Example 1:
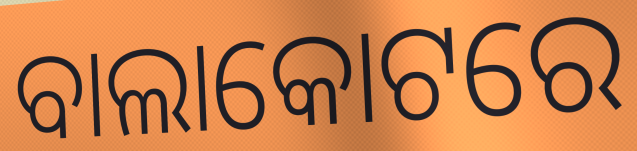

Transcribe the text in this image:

ବାଲାକୋଟରେ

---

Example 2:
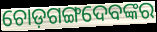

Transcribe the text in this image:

ଚୋଡ଼ଗଙ୍ଗଦେବଙ୍କର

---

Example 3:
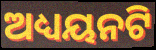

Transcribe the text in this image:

ଅଧ୍ୟୟନଟି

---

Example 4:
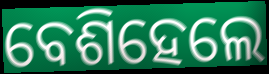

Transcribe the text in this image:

ବେଶିହେଲେ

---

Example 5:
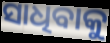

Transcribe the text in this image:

ସାଧିବାକୁ